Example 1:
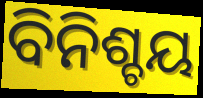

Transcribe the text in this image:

ବିନିଶ୍ଚୟ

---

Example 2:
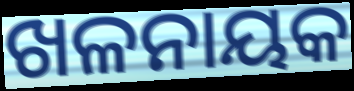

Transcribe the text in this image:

ଖଳନାୟକ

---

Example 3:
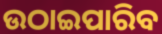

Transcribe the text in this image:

ଉଠାଇପାରିବ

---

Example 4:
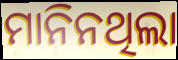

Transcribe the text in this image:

ମାନିନଥିଲା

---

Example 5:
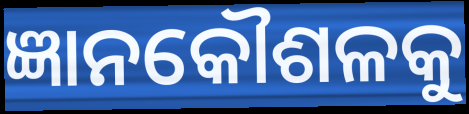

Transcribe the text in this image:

ଜ୍ଞାନକୌଶଳକୁ